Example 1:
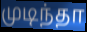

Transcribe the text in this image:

முடிந்தா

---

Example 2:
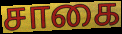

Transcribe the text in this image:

சாகை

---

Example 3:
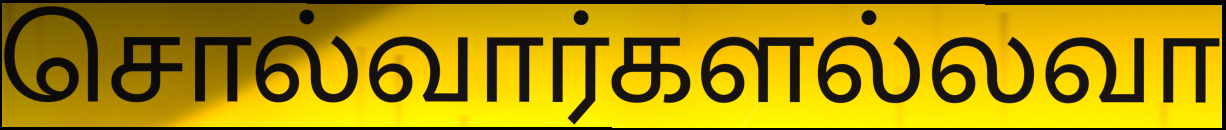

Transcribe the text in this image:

சொல்வார்களல்லவா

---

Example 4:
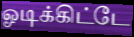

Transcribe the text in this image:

ஓடிக்கிட்டே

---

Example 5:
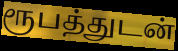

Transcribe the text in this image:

ரூபத்துடன்